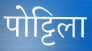
पोट्टिला